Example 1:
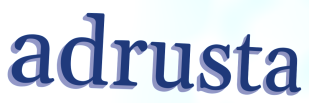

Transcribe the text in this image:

adrusta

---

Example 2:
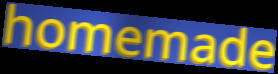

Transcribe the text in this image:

homemade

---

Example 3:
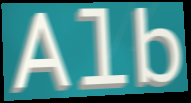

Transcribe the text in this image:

Alb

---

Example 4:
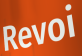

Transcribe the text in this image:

Revoi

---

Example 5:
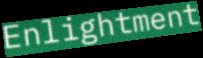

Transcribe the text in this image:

Enlightment